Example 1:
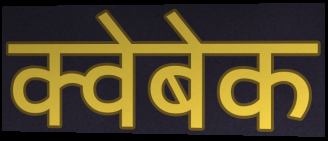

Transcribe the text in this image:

क्वेबेक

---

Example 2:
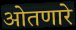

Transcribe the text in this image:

ओतणारे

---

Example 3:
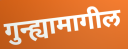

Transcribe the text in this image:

गुन्ह्यामागील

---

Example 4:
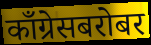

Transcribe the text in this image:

काँग्रेसबरोबर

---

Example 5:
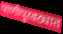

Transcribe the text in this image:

पाणीपुरवठ्यात